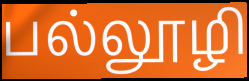
பல்லூழி